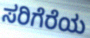
ಸರಿಗೆರೆಯ